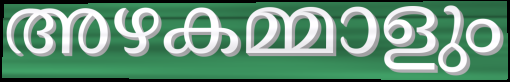
അഴകമ്മാളും